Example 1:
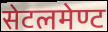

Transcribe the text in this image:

सेटलमेण्ट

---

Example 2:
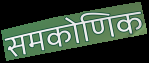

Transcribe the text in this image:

समकोणिक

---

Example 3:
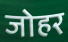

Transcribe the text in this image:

जोहर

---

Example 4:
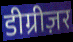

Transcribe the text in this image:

डीग्रीज़र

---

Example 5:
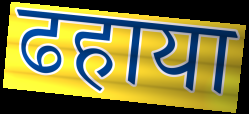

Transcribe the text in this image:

ढहाया